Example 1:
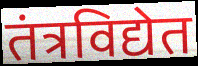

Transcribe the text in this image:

तंत्रविद्येत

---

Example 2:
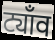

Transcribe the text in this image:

ट्याँव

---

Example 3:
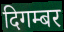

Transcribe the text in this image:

दिगम्बर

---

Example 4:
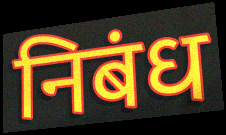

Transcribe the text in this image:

निबंध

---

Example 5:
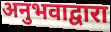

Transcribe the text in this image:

अनुभवाद्वारा